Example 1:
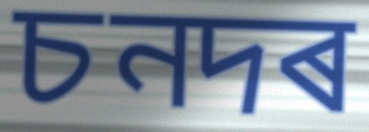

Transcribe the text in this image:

চনদৰ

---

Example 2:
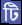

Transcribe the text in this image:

টি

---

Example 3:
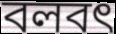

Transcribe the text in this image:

বলবৎ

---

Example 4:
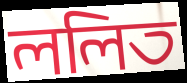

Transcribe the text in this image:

ললিত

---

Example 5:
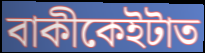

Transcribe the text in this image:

বাকীকেইটাত